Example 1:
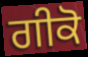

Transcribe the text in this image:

ਗੀਕੋ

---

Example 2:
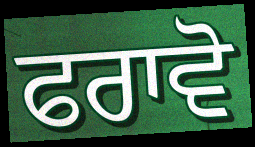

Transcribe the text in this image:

ਫਰਾਵੋ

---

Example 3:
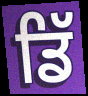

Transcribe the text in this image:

ਡਿੱ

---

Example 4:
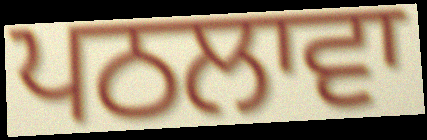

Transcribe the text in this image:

ਪਠਲਾਵਾ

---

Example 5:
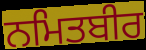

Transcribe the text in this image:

ਨਮਿਤਬੀਰ